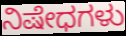
ನಿಷೇಧಗಳು